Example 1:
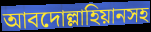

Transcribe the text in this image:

আবদোল্লাহিয়ানসহ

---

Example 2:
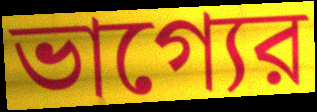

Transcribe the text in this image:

ভাগ্যের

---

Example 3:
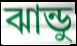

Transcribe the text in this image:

ঝান্ডু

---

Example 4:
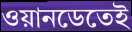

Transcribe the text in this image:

ওয়ানডেতেই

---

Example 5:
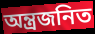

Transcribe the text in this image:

অন্ত্রজনিত